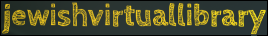
jewishvirtuallibrary